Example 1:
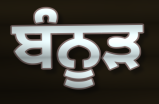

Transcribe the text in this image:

ਬੰਨੂੜ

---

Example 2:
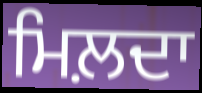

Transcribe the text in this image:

ਮਿਲ਼ਦਾ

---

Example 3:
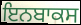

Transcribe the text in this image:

ਇਨਬਾਕਸ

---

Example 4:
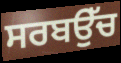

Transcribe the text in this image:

ਸਰਬਉੱਚ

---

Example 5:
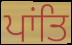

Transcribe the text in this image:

ਪਾਂਤਿ